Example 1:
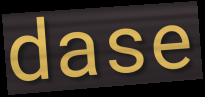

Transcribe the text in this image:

dase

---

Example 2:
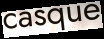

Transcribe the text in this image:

casque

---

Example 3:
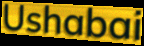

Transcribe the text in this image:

Ushabai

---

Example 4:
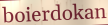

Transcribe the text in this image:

boierdokan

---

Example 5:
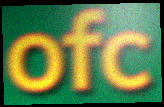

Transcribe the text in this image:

ofc